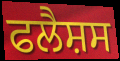
ਫਲੈਸ਼ਸ